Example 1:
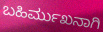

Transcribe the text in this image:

ಬಹಿರ್ಮುಖನಾಗಿ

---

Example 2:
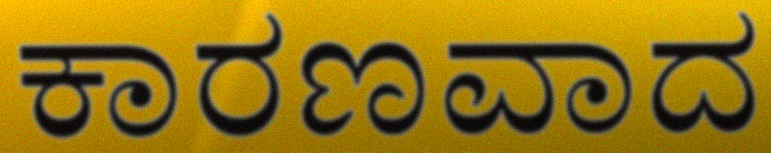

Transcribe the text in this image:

ಕಾರಣವಾದ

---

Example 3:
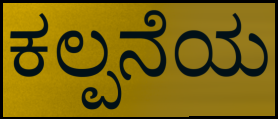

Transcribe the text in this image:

ಕಲ್ಪನೆಯ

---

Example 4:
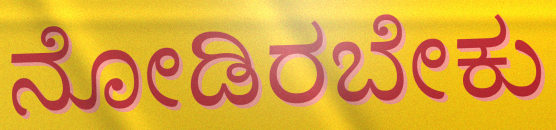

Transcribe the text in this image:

ನೋಡಿರಬೇಕು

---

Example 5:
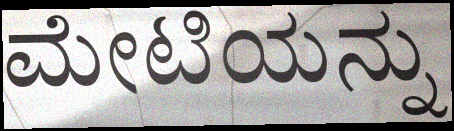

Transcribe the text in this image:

ಮೇಟಿಯನ್ನು